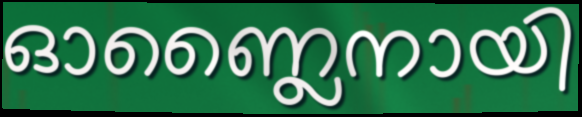
ഓണ്ലൈനായി